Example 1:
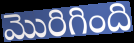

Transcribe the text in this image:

మొరిగింది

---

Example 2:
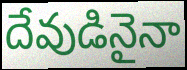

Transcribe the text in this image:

దేవుడినైనా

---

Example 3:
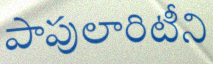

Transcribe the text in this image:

పాపులారిటీని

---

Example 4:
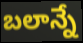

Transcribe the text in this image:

బలాన్నే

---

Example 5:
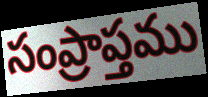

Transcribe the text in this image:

సంప్రాప్తము